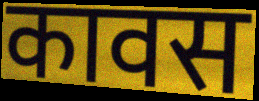
कावस